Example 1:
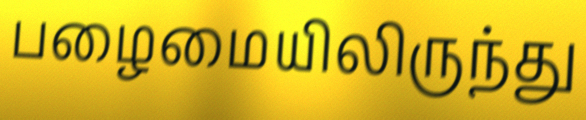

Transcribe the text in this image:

பழைமையிலிருந்து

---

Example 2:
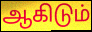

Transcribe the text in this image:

ஆகிடும்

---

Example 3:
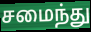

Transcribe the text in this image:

சமைந்து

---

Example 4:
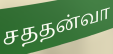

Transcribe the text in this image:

சததன்வா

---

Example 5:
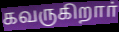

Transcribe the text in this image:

கவருகிறார்